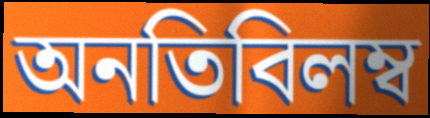
অনতিবিলম্ব